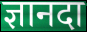
ज्ञानदा